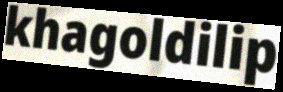
khagoldilip